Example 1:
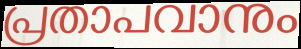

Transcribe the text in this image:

പ്രതാപവാനും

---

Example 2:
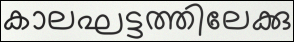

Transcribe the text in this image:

കാലഘട്ടത്തിലേക്കു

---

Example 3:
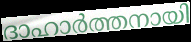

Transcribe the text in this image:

ദാഹാർത്തനായി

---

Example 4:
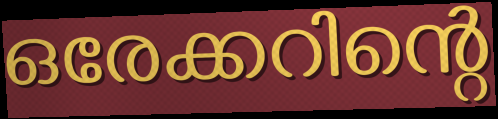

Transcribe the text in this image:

ഒരേക്കറിന്റെ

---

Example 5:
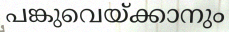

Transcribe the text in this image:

പങ്കുവെയ്ക്കാനും